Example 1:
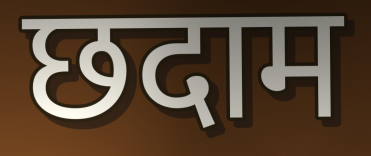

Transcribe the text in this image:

छदाम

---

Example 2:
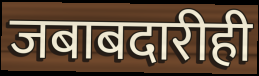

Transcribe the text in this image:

जबाबदारीही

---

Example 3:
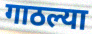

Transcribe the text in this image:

गाठल्या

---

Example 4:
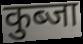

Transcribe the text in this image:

कुब्जा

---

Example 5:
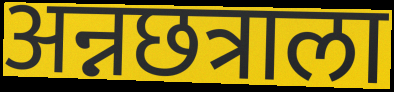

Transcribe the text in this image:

अन्नछत्राला